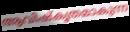
ആവിഷ്കൃതമാകുന്ന